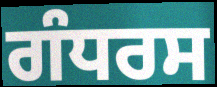
ਗੰਧਰਸ